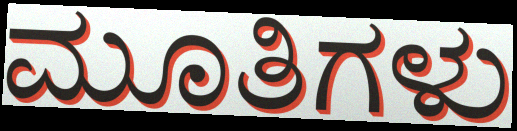
ಮೂತಿಗಳು